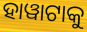
ହାୱାଟାକୁ